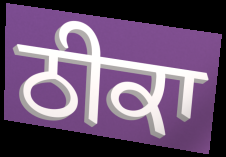
ਠੀਕਾ